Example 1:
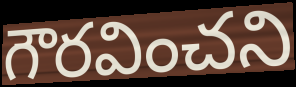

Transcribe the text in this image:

గౌరవించని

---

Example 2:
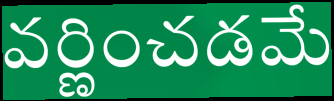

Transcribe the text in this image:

వర్ణించడమే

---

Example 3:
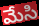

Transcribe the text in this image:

మేసి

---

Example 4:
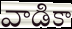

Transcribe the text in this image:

వాడికా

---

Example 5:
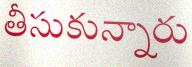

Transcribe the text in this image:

తీసుకున్నారు